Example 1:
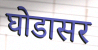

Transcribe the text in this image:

घोडासर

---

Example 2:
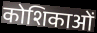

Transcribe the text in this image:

कोशिकाओं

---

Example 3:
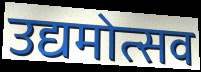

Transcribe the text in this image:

उद्यमोत्सव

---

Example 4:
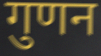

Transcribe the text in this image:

गुणन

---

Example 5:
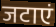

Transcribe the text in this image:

जटाएं